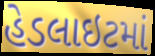
હેડલાઇટમાં